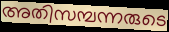
അതിസമ്പന്നരുടെ